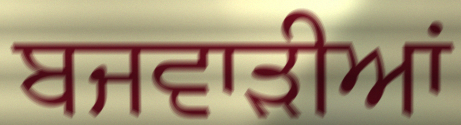
ਬਜਵਾੜੀਆਂ